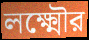
লক্ষ্মৌর